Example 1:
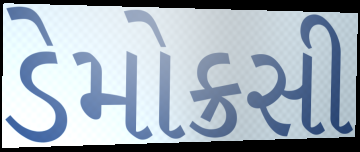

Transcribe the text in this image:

ડેમોક્રસી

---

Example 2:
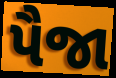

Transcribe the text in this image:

પૈજા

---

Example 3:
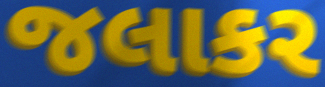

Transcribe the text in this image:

જલાકર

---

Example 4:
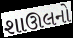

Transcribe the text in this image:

શાઊલનો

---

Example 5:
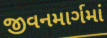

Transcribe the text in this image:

જીવનમાર્ગમાં